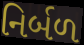
નિર્બળ